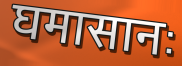
घमासानः